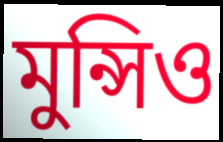
মুন্সিও